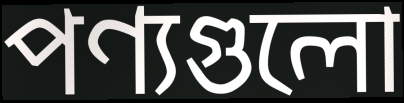
পণ্যগুলো